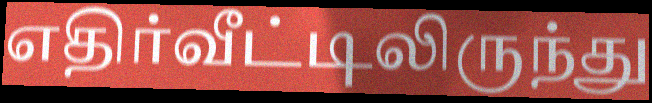
எதிர்வீட்டிலிருந்து